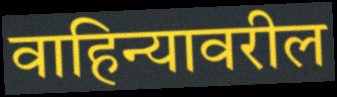
वाहिन्यावरील